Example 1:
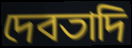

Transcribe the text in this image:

দেবতাদি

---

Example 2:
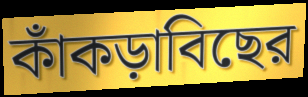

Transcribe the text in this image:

কাঁকড়াবিছের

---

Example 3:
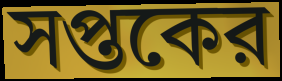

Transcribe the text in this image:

সপ্তকের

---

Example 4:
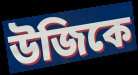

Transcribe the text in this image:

উজিকে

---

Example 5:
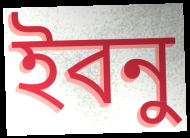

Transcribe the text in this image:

ইবনু